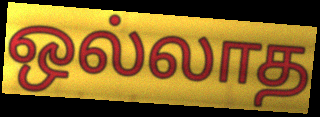
ஒல்லாத